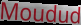
Moudud